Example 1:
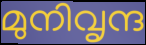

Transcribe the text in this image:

മുനിവൃന്ദ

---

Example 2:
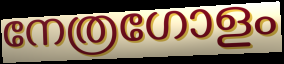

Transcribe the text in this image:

നേത്രഗോളം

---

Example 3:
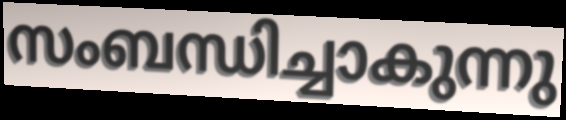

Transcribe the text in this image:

സംബന്ധിച്ചാകുന്നു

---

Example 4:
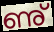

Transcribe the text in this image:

ണു്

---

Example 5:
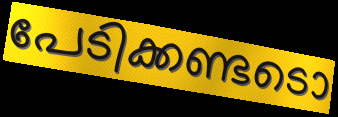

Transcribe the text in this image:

പേടിക്കണ്ടടൊ